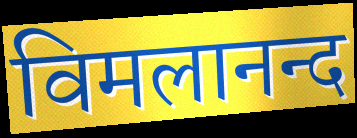
विमलानन्द